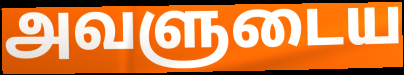
அவளுடைய